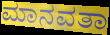
ಮಾನವತಾ